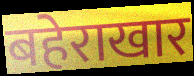
बहेराखार